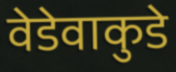
वेडेवाकुडे